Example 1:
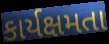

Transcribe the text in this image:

કાર્યક્ષમતા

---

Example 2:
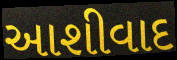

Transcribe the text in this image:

આશીવાદ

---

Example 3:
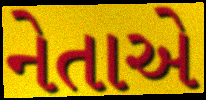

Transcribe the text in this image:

નેતાએ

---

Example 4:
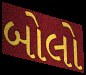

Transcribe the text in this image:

બોલો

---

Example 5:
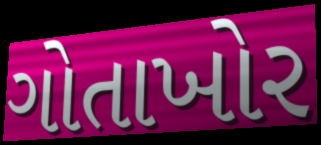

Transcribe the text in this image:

ગોતાખોર